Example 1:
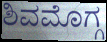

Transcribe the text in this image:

ಶಿವಮೊಗ್ಗ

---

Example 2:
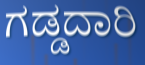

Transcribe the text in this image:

ಗಡ್ಡದಾರಿ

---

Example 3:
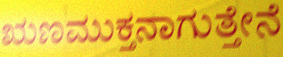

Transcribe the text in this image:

ಋಣಮುಕ್ತನಾಗುತ್ತೇನೆ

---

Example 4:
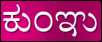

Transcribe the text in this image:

ಕುಂಞು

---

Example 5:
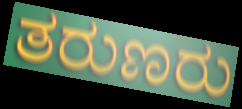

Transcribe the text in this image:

ತರುಣರು